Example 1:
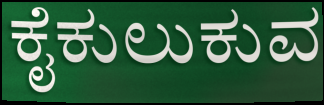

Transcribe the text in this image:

ಕೈಕುಲುಕುವ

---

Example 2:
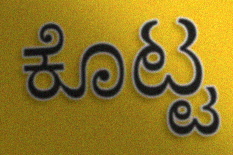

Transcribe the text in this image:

ಕೊಟ್ಟ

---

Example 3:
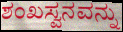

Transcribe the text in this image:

ಶಂಖಸ್ವನವನ್ನು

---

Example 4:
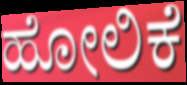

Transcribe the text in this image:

ಹೋಲಿಕೆ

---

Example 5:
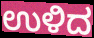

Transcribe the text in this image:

ಉಳಿದ